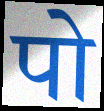
पो